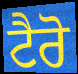
ਟੈਰੋ